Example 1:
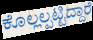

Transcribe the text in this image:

ಕೊಲ್ಲಲ್ಪಟ್ಟಿದ್ದಾರೆ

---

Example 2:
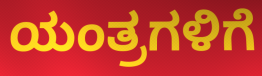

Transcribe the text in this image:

ಯಂತ್ರಗಳಿಗೆ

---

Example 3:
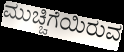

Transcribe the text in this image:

ಮುಚ್ಚಿಗೆಯಿರುವ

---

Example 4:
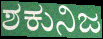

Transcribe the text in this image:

ಶಕುನಿಜ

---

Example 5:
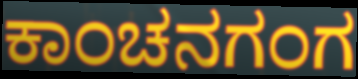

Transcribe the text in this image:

ಕಾಂಚನಗಂಗ